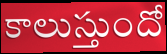
కాలుస్తుందో